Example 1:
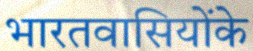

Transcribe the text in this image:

भारतवासियोंके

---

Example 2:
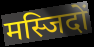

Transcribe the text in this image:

मस्जिदों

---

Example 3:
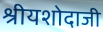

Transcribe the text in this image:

श्रीयशोदाजी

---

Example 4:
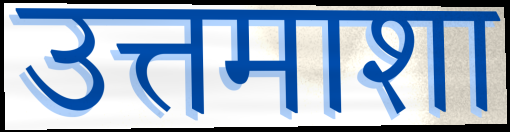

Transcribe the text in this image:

उत्तमाशा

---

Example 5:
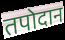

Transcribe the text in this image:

तपोदान